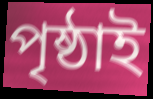
পৃষ্ঠাই